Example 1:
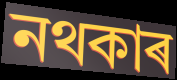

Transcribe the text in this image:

নথকাৰ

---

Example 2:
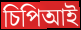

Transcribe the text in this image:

চিপিআই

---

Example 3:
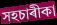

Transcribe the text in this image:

সহচাৰীকা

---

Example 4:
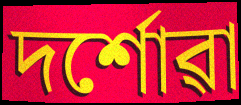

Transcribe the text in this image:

দৰ্শোৱা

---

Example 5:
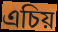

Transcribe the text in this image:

এচিয়